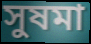
সুষমা